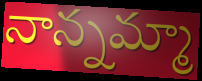
నాన్నమ్మా